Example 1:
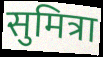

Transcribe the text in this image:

सुमित्रा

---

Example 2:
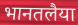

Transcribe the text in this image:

भानतलैया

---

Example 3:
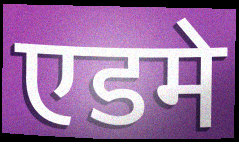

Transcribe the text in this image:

एडमे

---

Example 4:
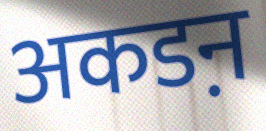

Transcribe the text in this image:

अकडऩ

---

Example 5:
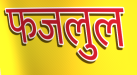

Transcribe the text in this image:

फजलुल